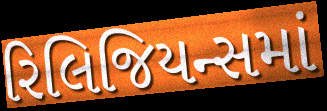
રિલિજિયન્સમાં